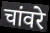
चांवरे